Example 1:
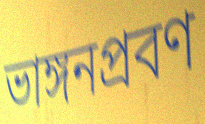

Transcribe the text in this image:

ভাঙ্গনপ্রবণ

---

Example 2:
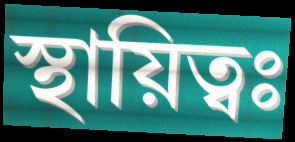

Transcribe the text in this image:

স্থায়িত্বঃ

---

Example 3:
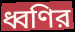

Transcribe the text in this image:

ধ্বণির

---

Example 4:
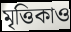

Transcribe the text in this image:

মৃত্তিকাও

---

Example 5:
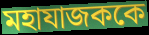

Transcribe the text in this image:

মহাযাজককে